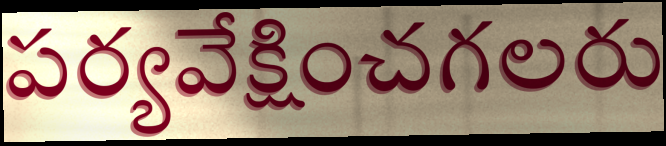
పర్యవేక్షించగలరు